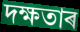
দক্ষতাৰ